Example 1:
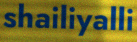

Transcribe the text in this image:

shailiyalli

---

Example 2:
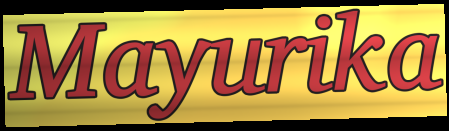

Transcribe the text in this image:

Mayurika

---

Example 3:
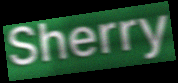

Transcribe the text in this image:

Sherry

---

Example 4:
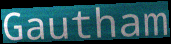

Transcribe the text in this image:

Gautham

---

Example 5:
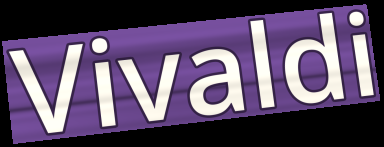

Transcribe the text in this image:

Vivaldi